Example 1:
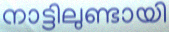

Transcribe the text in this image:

നാട്ടിലുണ്ടായി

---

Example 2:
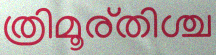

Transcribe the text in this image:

ത്രിമൂര്തിശ്ച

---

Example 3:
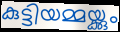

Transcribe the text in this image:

കുട്ടിയമ്മയ്ക്കും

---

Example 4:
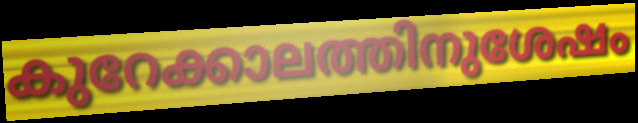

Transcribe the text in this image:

കുറേക്കാലത്തിനുശേഷം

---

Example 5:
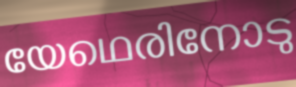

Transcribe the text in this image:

യേഥെരിനോടു